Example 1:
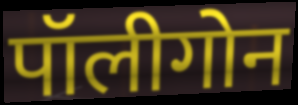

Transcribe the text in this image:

पॉलीगोन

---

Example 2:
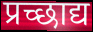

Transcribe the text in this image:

प्रच्छाद्य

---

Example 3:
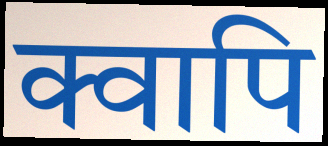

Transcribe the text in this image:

क्वापि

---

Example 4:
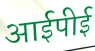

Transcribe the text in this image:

आईपीई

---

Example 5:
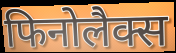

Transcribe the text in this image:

फिनोलैक्स